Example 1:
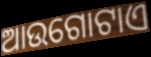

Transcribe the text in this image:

ଆଉଗୋଟାଏ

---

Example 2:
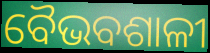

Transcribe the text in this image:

ବୈଭବଶାଳୀ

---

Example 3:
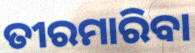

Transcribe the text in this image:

ତୀରମାରିବା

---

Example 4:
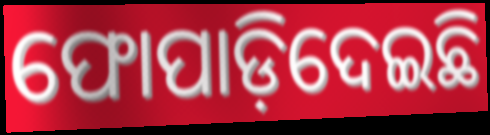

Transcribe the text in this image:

ଫୋପାଡ଼ିଦେଇଛି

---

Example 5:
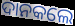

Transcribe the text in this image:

ଦାନକଲେ